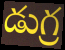
డుగ్ర